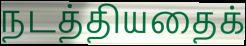
நடத்தியதைக்